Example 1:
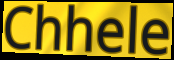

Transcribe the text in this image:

Chhele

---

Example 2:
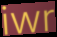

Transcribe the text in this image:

iwr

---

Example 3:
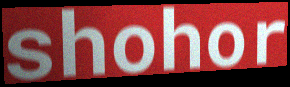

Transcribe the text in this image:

shohor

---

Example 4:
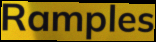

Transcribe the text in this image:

Ramples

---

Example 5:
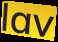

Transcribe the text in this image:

Iav